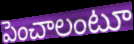
పెంచాలంటూ